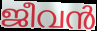
ജീവൻ